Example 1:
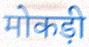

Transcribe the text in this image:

मोकड़ी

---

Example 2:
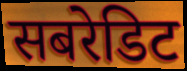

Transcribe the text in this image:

सबरेडिट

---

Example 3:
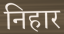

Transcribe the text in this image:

निहार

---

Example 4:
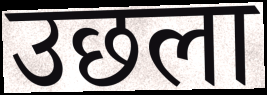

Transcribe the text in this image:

उछला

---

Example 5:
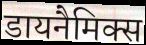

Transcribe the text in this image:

डायनैमिक्स